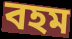
বহম